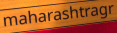
maharashtragr